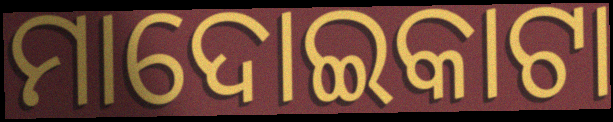
ମାଦୋଇକାଟା